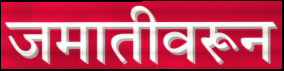
जमातीवरून